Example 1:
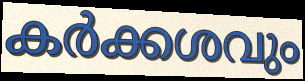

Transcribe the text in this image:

കർക്കശവും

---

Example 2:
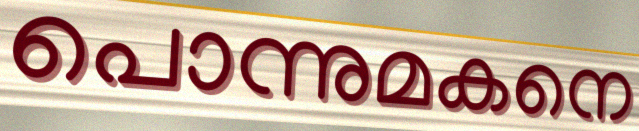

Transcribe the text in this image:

പൊന്നുമകനെ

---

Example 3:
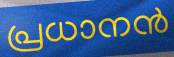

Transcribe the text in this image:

പ്രധാനൻ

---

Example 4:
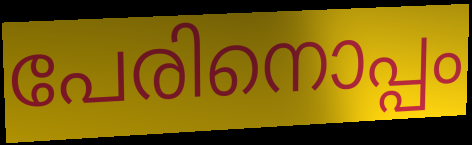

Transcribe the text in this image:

പേരിനൊപ്പം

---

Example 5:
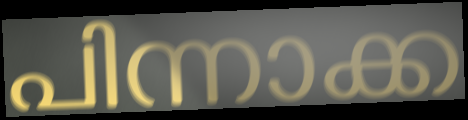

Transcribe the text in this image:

പിന്നാക്ക